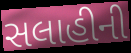
સલાહીની